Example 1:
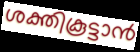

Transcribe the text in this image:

ശക്തികൂട്ടാൻ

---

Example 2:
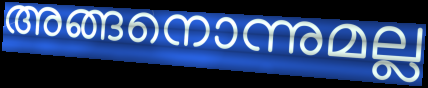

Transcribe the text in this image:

അങ്ങനൊന്നുമല്ല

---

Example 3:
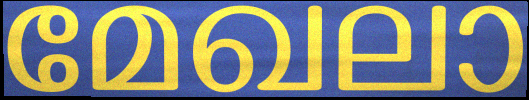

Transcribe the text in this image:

മേഖലാ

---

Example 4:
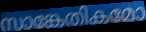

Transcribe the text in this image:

സാങ്കേതികമോ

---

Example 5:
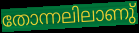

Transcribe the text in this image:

തോന്നലിലാണു്